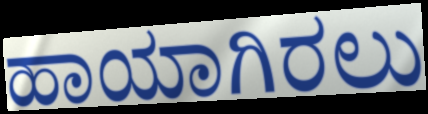
ಹಾಯಾಗಿರಲು